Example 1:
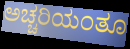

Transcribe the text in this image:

ಅಚ್ಚರಿಯಂತೂ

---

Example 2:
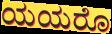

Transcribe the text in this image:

ಯಯರೊ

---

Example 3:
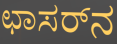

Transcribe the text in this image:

ಛಾಸರ್‌ನ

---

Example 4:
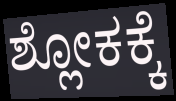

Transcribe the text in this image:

ಶ್ಲೋಕಕ್ಕೆ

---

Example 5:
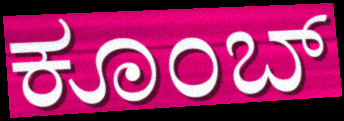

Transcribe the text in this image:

ಕೂಂಬ್